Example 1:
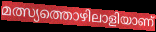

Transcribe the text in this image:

മത്സ്യത്തൊഴിലാളിയാണ്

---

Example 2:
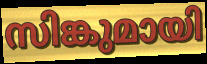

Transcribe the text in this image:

സിങ്കുമായി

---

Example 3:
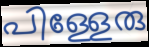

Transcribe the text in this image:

പിള്ളേരു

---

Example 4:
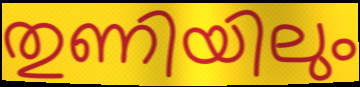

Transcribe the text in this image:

തുണിയിലും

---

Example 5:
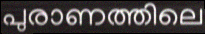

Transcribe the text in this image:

പുരാണത്തിലെ